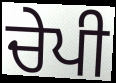
ਚੇਪੀ